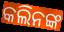
କଲିନଙ୍କ